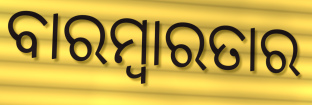
ବାରମ୍ବାରତାର